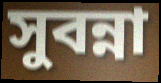
সুবন্না